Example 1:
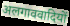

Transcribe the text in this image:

अलगाववादियों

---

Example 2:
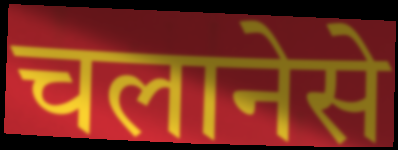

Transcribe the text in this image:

चलानेसे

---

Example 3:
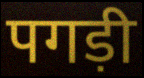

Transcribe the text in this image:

पगड़ी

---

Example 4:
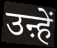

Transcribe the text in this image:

उऩ्हें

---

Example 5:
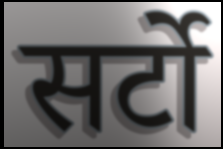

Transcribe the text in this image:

सर्टो